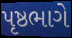
પૃષ્ઠભાગે